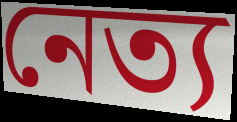
নেত্য